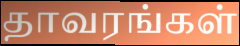
தாவரங்கள்